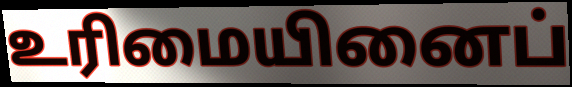
உரிமையினைப்